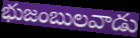
భుజంబులవాడు